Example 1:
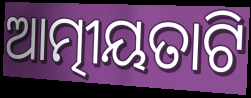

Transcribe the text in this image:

ଆତ୍ମୀୟତାଟି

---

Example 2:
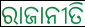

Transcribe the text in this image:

ରାଜାନୀତି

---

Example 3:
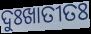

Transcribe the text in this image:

ଦୁଃଖାତୀତଃ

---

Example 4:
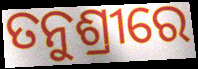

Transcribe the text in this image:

ତନୁଶ୍ରୀରେ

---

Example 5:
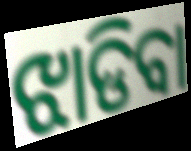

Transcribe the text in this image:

ଝାଡିବା